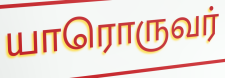
யாரொருவர்